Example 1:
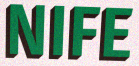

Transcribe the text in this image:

NIFE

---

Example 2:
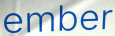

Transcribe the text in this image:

ember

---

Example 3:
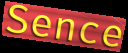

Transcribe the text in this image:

Sence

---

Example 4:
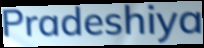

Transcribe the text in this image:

Pradeshiya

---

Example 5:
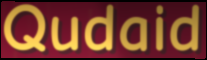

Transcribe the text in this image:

Qudaid